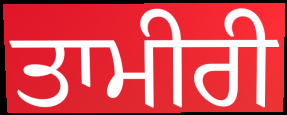
ਤਾਮੀਰੀ